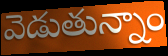
వెడుతున్నాం